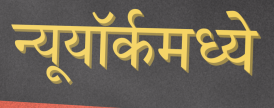
न्यूयॉर्कमध्ये